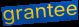
grantee